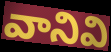
వానివి